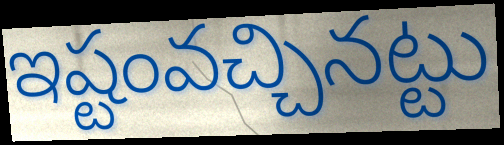
ఇష్టంవచ్చినట్టు